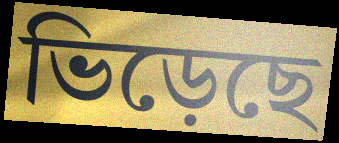
ভিড়েছে